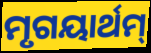
ମୃଗୟାର୍ଥମ୍